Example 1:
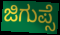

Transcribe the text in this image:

ಜಿಗುಪ್ಸೆ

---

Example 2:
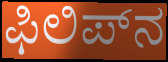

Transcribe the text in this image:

ಫಿಲಿಪ್‌ನ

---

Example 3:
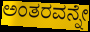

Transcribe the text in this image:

ಅಂತರವನ್ನೇ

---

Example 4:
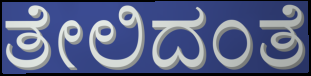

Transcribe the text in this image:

ತೇಲಿದಂತೆ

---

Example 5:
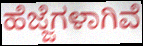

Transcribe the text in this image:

ಹೆಜ್ಜೆಗಳಾಗಿವೆ